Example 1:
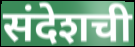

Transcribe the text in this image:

संदेशची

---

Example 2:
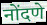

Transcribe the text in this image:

नोंदणे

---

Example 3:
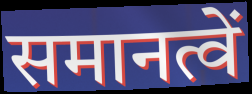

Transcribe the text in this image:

समानत्वें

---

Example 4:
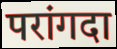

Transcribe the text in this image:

परांगदा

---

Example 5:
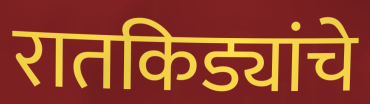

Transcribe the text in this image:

रातकिड्यांचे